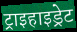
ट्राइहाइड्रेट